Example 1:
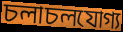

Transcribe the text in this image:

চলাচলযোগ্য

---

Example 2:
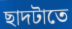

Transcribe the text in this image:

ছাদটাতে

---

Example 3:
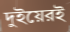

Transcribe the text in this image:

দুইয়েরই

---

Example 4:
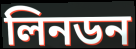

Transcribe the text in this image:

লিনডন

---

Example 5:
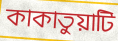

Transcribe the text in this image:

কাকাতুয়াটি